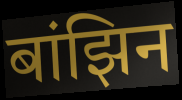
बांझिन